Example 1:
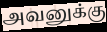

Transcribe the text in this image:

அவனுக்கு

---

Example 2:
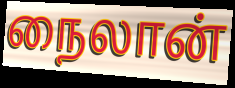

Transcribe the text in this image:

நைலான்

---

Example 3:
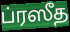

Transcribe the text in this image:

ப்ரஸீத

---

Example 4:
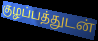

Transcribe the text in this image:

குழப்பத்துடன்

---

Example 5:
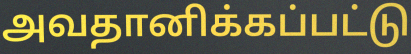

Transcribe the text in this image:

அவதானிக்கப்பட்டு